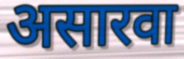
असारवा